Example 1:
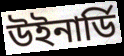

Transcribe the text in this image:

উইনার্ডি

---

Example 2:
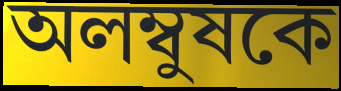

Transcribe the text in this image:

অলম্বুষকে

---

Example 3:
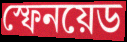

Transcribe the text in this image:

স্ফেনয়েড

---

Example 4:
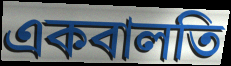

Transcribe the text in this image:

একবালতি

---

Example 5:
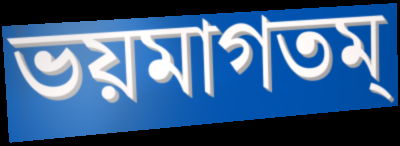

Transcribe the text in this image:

ভয়মাগতম্